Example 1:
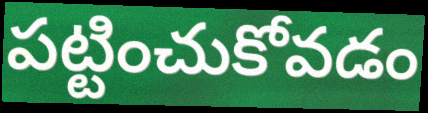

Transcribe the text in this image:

పట్టించుకోవడం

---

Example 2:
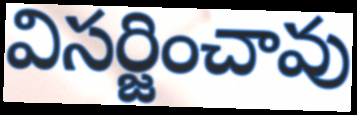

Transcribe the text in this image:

విసర్జించావు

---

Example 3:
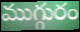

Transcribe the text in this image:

ముగ్గురం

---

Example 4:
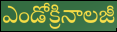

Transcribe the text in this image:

ఎండోక్రినాలజీ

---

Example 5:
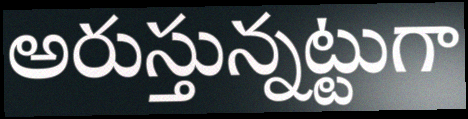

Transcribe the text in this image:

అరుస్తున్నట్టుగా